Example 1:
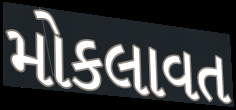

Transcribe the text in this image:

મોકલાવત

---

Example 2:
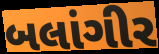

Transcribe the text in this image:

બલાંગીર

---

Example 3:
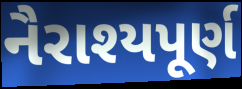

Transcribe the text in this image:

નૈરાશ્યપૂર્ણ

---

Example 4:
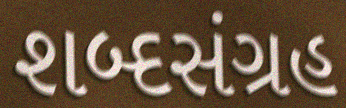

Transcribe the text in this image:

શબ્દસંગ્રહ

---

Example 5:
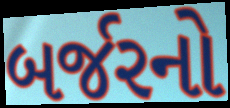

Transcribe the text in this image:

બર્જરનો